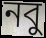
নবু